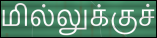
மில்லுக்குச்